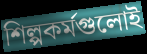
শিল্পকর্মগুলোই